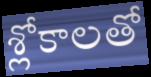
శ్లోకాలతో